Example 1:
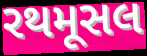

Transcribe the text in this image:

રથમૂસલ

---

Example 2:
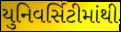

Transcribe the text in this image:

યુનિવર્સિટીમાંથી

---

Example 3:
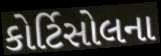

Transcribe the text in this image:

કોર્ટિસોલના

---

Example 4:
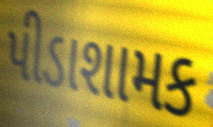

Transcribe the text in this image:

પીડાશામક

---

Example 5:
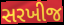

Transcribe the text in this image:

સરખીજ